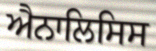
ਐਨਾਲਿਸਿਸ